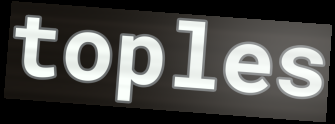
toples